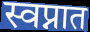
स्वप्नात